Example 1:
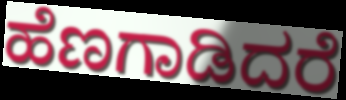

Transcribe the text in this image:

ಹೆಣಗಾಡಿದರೆ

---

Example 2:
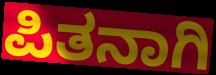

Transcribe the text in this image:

ಪಿತನಾಗಿ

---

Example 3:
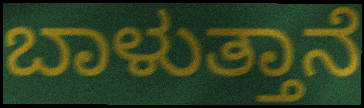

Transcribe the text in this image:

ಬಾಳುತ್ತಾನೆ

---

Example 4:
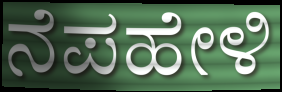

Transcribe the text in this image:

ನೆಪಹೇಳಿ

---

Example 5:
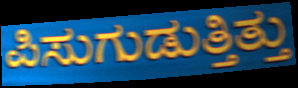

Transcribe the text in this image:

ಪಿಸುಗುಡುತ್ತಿತ್ತು